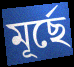
মূর্ছে